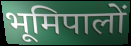
भूमिपालों